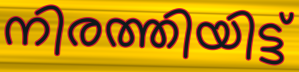
നിരത്തിയിട്ട്